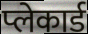
प्‍लेकार्ड